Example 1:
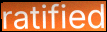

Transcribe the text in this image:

ratified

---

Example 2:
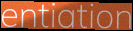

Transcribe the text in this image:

entiation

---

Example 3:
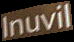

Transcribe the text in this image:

Inuvil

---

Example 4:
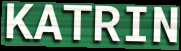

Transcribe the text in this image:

KATRIN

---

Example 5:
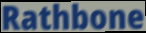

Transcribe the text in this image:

Rathbone